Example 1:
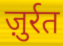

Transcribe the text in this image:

ज़ुर्रत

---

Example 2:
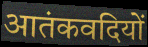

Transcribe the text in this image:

आतंकवदियों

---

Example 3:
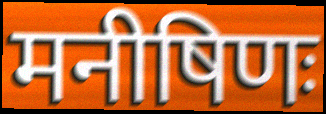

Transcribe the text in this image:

मनीषिणः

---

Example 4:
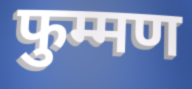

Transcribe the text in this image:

फुम्मण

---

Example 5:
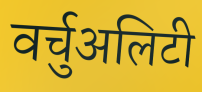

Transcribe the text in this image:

वर्चुअलिटी